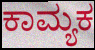
ಕಾಮ್ಯಕ